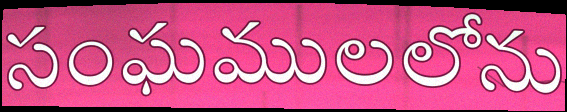
సంఘములలోను